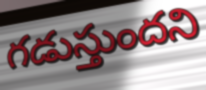
గడుస్తుందని